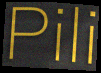
Pili